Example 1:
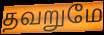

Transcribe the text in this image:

தவறுமே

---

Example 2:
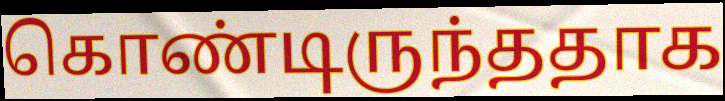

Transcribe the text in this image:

கொண்டிருந்ததாக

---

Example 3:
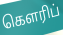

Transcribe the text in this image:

கௌரிப்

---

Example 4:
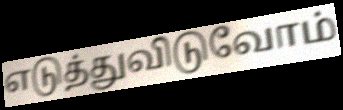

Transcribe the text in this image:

எடுத்துவிடுவோம்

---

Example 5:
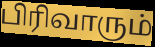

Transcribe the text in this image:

பிரிவாரும்